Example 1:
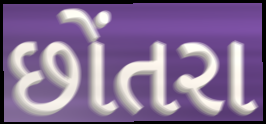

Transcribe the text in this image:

છોંતરા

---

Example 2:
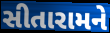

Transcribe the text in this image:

સીતારામને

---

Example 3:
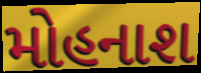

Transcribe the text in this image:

મોહનાશ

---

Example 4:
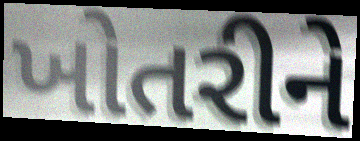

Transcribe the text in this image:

ખોતરીને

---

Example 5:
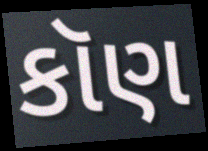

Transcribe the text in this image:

કૉણ